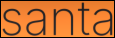
santa